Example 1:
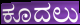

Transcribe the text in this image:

ಕೂದಲು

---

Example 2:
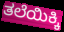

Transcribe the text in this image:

ತಲೆಯಿಕ್ಕಿ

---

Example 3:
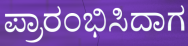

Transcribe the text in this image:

ಪ್ರಾರಂಭಿಸಿದಾಗ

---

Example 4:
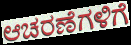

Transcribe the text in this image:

ಆಚರಣೆಗಳಿಗೆ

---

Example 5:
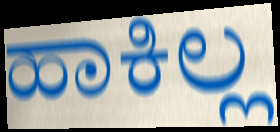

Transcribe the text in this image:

ಹಾಕಿಲ್ಲ